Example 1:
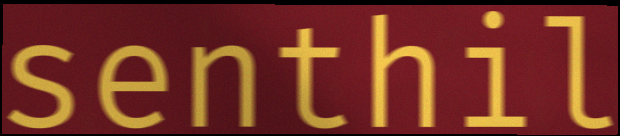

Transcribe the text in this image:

senthil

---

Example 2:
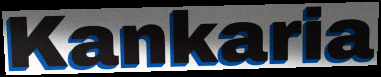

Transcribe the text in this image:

Kankaria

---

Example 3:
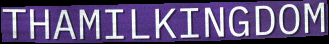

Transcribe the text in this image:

THAMILKINGDOM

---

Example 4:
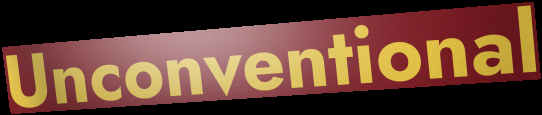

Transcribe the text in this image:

Unconventional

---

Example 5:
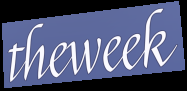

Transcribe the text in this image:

theweek